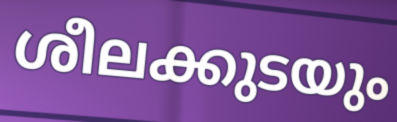
ശീലക്കുടയും